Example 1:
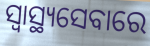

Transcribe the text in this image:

ସ୍ୱାସ୍ଥ୍ୟସେବାରେ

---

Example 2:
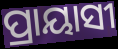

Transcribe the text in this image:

ପ୍ରାୟାସୀ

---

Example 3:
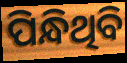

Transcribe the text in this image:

ପିନ୍ଧିଥିବି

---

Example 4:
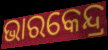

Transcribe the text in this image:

ଭାରକେନ୍ଦ୍ର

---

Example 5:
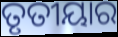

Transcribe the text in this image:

ତୃତୀୟାର